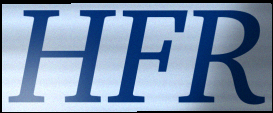
HFR